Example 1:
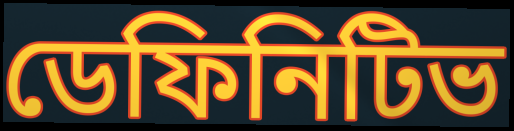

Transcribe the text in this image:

ডেফিনিটিভ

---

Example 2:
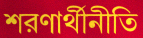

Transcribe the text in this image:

শরণার্থীনীতি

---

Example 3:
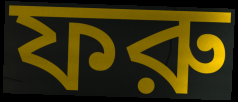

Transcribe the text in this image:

ফরু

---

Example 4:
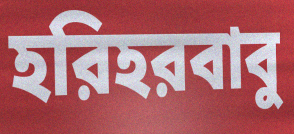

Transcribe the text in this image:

হরিহরবাবু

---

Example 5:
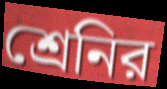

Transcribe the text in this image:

শ্রেনির